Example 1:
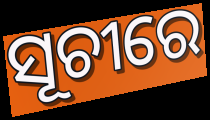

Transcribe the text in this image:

ସୂଚୀରେ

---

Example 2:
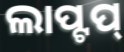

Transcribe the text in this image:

ଲାପ୍ଟପ୍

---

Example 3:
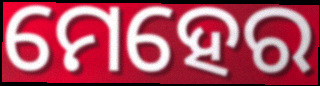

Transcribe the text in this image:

ମେହେର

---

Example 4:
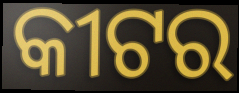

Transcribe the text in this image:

କୀଟର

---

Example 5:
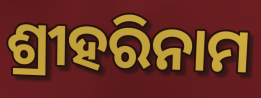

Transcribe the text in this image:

ଶ୍ରୀହରିନାମ